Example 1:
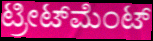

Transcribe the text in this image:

ಟ್ರೀಟ್‌ಮೆಂಟ್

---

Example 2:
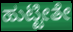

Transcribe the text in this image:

ಹುಟ್ಟೀತೇ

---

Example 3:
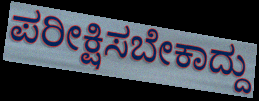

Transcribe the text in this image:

ಪರೀಕ್ಷಿಸಬೇಕಾದ್ದು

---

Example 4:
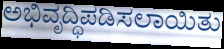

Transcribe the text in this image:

ಅಭಿವೃದ್ಧಿಪಡಿಸಲಾಯಿತು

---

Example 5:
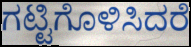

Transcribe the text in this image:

ಗಟ್ಟಿಗೊಳಿಸಿದರೆ